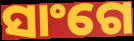
ସାଂଗେ